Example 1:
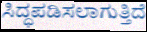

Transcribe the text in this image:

ಸಿದ್ಧಪಡಿಸಲಾಗುತ್ತಿದೆ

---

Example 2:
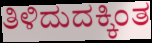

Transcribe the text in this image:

ತಿಳಿದುದಕ್ಕಿಂತ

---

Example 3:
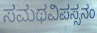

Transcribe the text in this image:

ಸಮಥವಿಪಸ್ಸನಂ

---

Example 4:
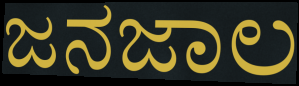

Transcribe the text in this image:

ಜನಜಾಲ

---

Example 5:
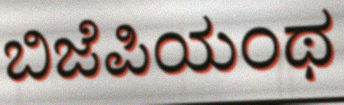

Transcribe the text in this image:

ಬಿಜೆಪಿಯಂಥ